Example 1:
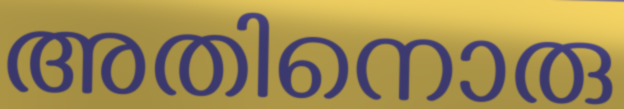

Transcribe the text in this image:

അതിനൊരു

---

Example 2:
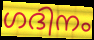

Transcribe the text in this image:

ഗദിനം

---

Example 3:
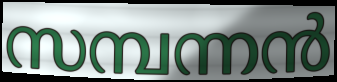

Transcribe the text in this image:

സമ്പന്നൻ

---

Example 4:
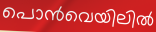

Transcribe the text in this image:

പൊൻവെയിലിൽ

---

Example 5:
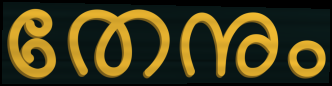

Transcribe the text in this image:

തേനും